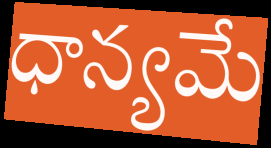
ధాన్యమే